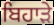
ਬਿਹਾੜੇ